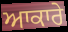
ਆਕਾਰੇ